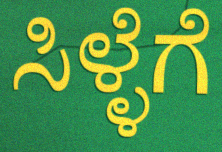
ಸಿಳ್ಳೆಗೆ